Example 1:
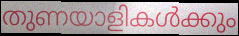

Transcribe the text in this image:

തുണയാളികൾക്കും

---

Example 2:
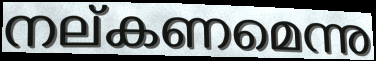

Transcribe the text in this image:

നല്‌കണമെന്നു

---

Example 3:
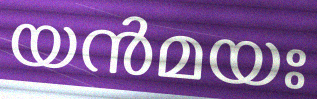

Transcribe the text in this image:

യൻമയഃ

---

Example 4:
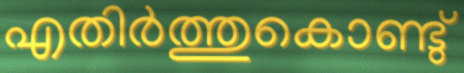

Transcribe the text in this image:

എതിർത്തുകൊണ്ടു്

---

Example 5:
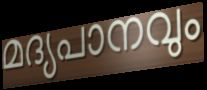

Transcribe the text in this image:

മദ്യപാനവും